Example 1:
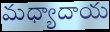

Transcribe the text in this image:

మధ్యాదాయ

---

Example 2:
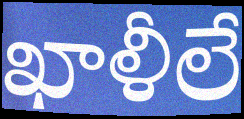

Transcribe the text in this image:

ఖాళీలే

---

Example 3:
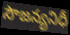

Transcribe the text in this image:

సౌజన్యనిధీ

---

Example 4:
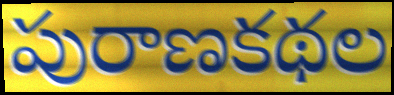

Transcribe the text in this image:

పురాణకథల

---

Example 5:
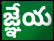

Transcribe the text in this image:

జ్ఞేయ